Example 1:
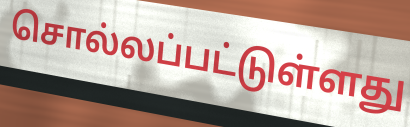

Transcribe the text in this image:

சொல்லப்பட்டுள்ளது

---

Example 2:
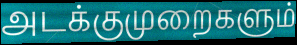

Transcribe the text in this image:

அடக்குமுறைகளும்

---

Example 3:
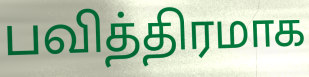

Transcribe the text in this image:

பவித்திரமாக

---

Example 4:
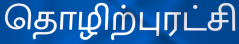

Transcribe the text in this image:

தொழிற்புரட்சி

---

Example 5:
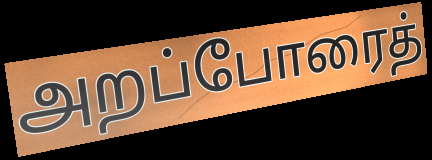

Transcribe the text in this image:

அறப்போரைத்